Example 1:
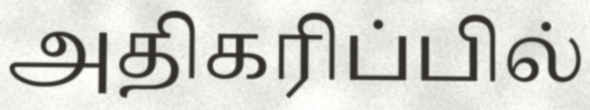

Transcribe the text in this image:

அதிகரிப்பில்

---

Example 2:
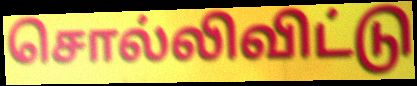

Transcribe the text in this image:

சொல்லிவிட்டு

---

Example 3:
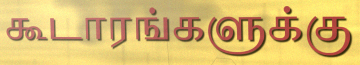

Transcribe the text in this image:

கூடாரங்களுக்கு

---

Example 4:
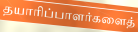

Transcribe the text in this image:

தயாரிப்பாளர்களைத்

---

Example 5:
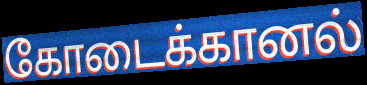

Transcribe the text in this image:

கோடைக்கானல்